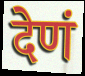
देणं